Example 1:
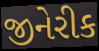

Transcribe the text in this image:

જીનેરીક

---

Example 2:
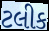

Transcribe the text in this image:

ટલીક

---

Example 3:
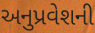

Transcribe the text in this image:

અનુપ્રવેશની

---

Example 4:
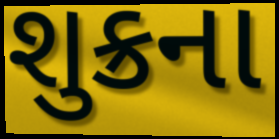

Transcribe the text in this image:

શુક્રના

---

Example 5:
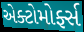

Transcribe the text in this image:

એક્ટોમોર્ફ્સ